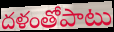
దళంతోపాటు